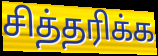
சித்தரிக்க